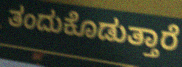
ತಂದುಕೊಡುತ್ತಾರೆ